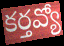
కర్తవ్యో